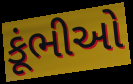
કૂંભીઓ